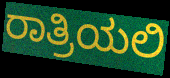
ರಾತ್ರಿಯಲಿ